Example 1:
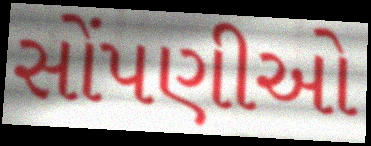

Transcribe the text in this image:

સોંપણીઓ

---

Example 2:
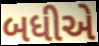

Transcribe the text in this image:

બધીએ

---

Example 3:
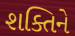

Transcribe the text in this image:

શક્તિને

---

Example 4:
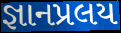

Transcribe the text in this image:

જ્ઞાનપ્રલય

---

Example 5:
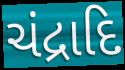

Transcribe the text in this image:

ચંદ્રાદિ